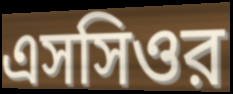
এসসিওর